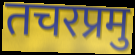
तचरप्रमु